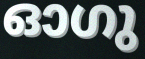
ഓഗു